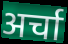
अर्चा